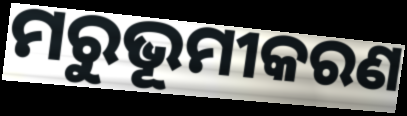
ମରୁଭୂମୀକରଣ